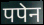
पपेन